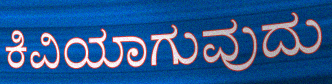
ಕಿವಿಯಾಗುವುದು